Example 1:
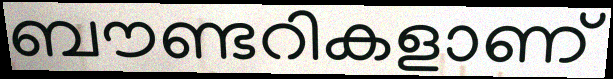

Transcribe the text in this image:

ബൗണ്ടറികളാണ്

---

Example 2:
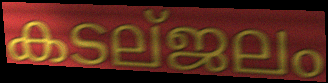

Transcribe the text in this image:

കടല്ജലം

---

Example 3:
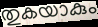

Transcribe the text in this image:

തുകയാകും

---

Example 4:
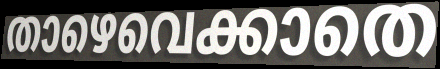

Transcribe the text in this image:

താഴെവെക്കാതെ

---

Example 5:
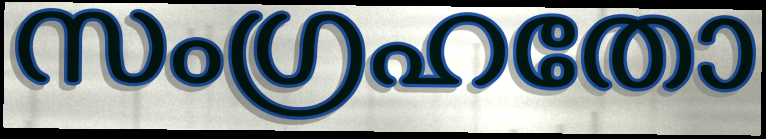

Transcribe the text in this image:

സംഗ്രഹതോ